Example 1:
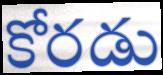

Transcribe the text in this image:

కోరడు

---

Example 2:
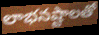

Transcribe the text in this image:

లాభనష్టాలతో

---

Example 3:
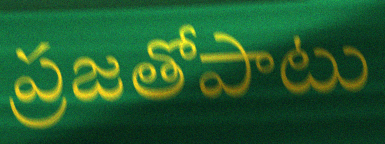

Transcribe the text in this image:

ప్రజతోపాటు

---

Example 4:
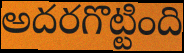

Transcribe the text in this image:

అదరగొట్టింది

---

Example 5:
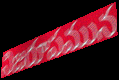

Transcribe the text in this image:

నిజరూపమున